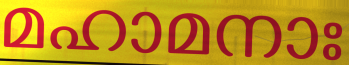
മഹാമനാഃ